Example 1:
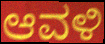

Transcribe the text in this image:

ಆವಳಿ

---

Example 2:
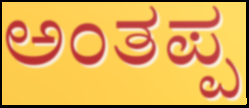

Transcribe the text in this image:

ಅಂತಪ್ಪ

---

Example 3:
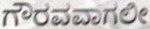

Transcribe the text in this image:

ಗೌರವವಾಗಲೀ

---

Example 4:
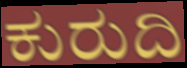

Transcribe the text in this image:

ಕುರುದಿ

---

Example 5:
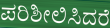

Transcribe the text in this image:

ಪರಿಶೀಲಿಸಿದರೆ